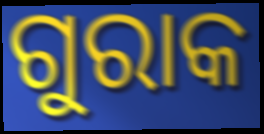
ଗୁରାକ